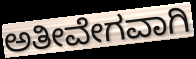
ಅತೀವೇಗವಾಗಿ